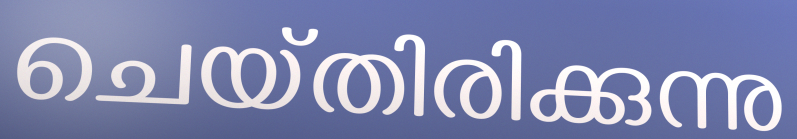
ചെയ്‌തിരിക്കുന്നു